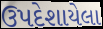
ઉપદેશાયેલા